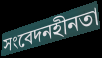
সংবেদনহীনতা